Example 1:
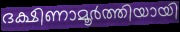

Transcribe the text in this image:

ദക്ഷിണാമൂർത്തിയായി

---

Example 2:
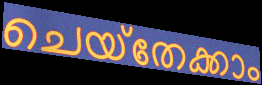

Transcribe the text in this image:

ചെയ്‌തേക്കാം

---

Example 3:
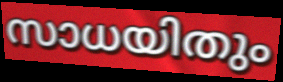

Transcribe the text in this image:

സാധയിതും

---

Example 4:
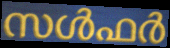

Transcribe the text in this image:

സൾഫർ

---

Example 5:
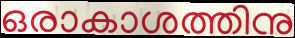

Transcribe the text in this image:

ഒരാകാശത്തിനു